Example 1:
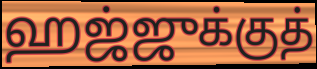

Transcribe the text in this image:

ஹஜ்ஜுக்குத்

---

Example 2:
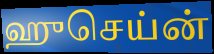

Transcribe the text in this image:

ஹுசெய்ன்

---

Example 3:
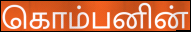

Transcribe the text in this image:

கொம்பனின்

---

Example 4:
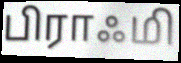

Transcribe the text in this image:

பிராஃமி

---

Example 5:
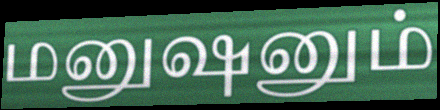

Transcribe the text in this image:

மனுஷனும்